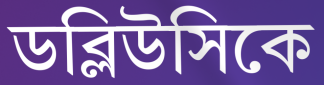
ডব্লিউসিকে